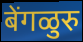
बेंगळुरु